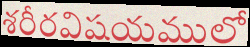
శరీరవిషయములో